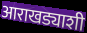
आराखड्याशी